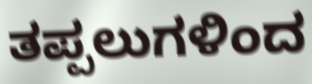
ತಪ್ಪಲುಗಳಿಂದ